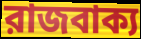
রাজবাক্য